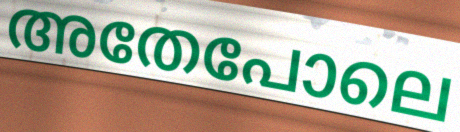
അതേപോലെ